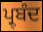
ਪ੍ਰ੍ਬੰਦ